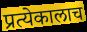
प्रत्येकालाच